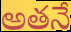
అతనే